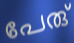
പേരു്